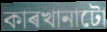
কাৰখানাটো